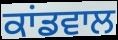
ਕਾਂਡਵਾਲ